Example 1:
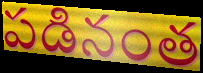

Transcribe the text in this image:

పడినంత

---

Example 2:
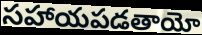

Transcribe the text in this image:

సహాయపడతాయో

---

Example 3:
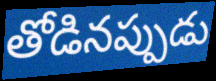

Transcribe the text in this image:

తోడినప్పుడు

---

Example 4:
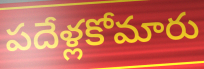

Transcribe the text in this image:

పదేళ్లకోమారు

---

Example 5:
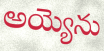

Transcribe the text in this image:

అయ్యెను